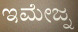
ಇಮೇಜ್ನ